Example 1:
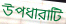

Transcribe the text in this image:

উপধারাটি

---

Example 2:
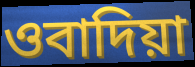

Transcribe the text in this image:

ওবাদিয়া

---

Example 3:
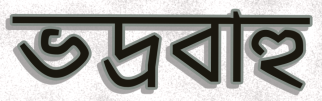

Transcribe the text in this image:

ভদ্রবাহু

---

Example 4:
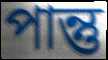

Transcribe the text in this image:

পান্তু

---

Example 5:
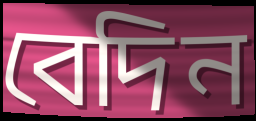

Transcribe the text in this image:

বেদিন